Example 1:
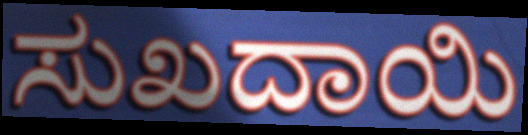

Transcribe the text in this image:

ಸುಖದಾಯಿ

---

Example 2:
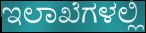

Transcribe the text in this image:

ಇಲಾಖೆಗಳಲ್ಲಿ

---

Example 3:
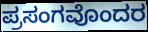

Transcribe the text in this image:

ಪ್ರಸಂಗವೊಂದರ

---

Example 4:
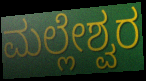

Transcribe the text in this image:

ಮಲ್ಲೇಶ್ವರ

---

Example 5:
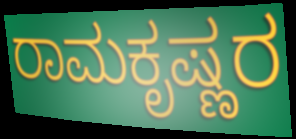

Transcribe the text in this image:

ರಾಮಕೃಷ್ಣರ